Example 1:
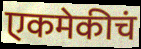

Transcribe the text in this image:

एकमेकीचं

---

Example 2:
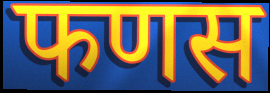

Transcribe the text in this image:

फणस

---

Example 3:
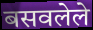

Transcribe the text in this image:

बसवलेले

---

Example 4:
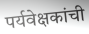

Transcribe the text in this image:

पर्यवेक्षकांची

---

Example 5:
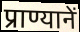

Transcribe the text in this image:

प्राण्यानें